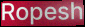
Ropesh